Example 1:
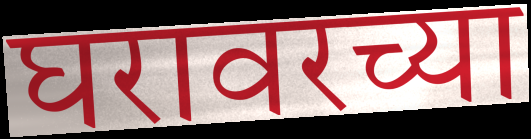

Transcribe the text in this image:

घरावरच्या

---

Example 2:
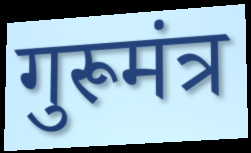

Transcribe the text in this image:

गुरूमंत्र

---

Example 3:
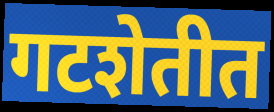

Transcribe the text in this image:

गटशेतीत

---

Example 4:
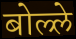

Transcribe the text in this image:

बोल्ले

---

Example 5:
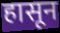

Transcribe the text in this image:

हासून